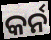
କର୍ନ